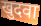
खुदवा